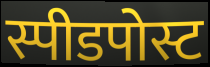
स्पीडपोस्ट